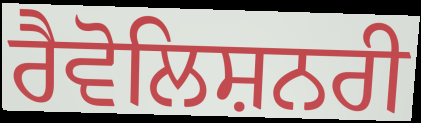
ਰੈਵੋਲਿਸ਼ਨਰੀ